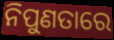
ନିପୁଣତାରେ